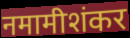
नमामीशंकर